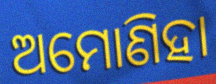
ଅମୋଣିହା